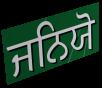
ਜਨਿਯੋ